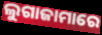
ଲୁଗାଜାମାରେ